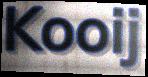
Kooij